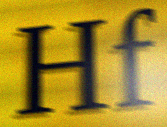
Hf